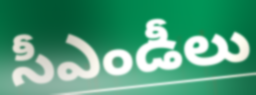
సీఎండీలు